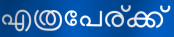
എത്രപേര്ക്ക്